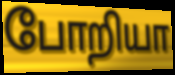
போறியா